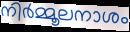
നിർമ്മൂലനാശം